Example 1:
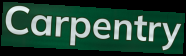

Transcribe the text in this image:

Carpentry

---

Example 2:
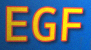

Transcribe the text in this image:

EGF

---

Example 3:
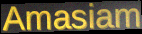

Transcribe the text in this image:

Amasiam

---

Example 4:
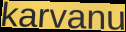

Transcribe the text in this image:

karvanu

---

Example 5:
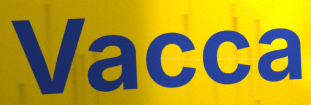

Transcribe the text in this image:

Vacca